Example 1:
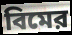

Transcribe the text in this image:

বিমের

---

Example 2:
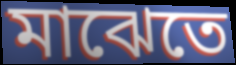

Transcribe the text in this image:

মাঝেতে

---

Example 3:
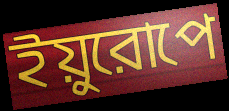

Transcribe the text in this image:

ইয়ুরোপে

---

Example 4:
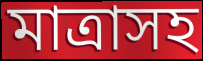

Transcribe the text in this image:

মাত্রাসহ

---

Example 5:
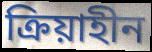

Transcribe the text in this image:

ক্রিয়াহীন